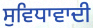
ਸੁਵਿਧਾਵਾਦੀ